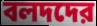
বলদদের